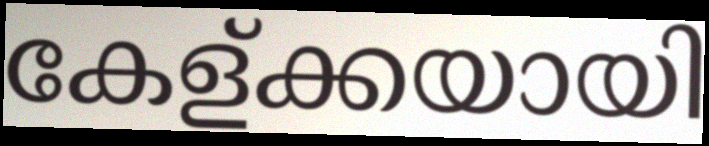
കേള്ക്കയായി